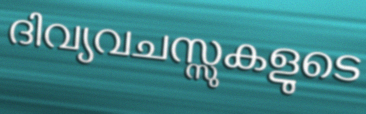
ദിവ്യവചസ്സുകളുടെ